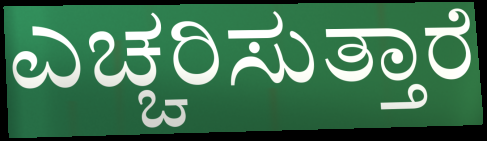
ಎಚ್ಚರಿಸುತ್ತಾರೆ